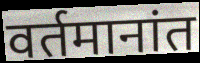
वर्तमानांत